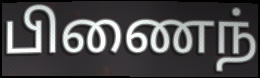
பிணைந்